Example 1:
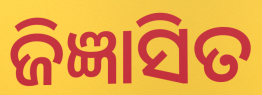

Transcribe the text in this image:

ଜିଜ୍ଞାସିତ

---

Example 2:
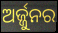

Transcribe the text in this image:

ଅର୍ଜ୍ଜୁନର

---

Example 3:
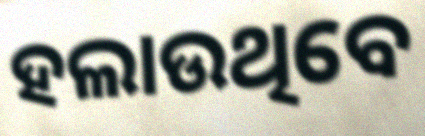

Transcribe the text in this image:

ହଲାଉଥିବେ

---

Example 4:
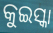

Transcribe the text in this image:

କୁଇସ୍କା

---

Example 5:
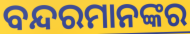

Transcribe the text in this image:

ବନ୍ଦରମାନଙ୍କର